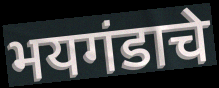
भयगंडाचे